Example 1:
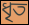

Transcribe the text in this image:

ধৃত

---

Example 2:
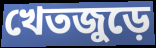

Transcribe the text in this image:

খেতজুড়ে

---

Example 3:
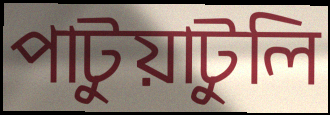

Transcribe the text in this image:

পাটুয়াটুলি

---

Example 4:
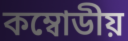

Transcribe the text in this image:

কম্বোডীয়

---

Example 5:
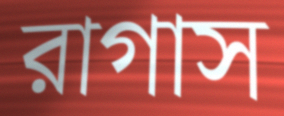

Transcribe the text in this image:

রাগাস